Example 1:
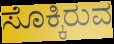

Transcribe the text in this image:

ಸೊಕ್ಕಿರುವ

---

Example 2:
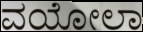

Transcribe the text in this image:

ವಯೋಲಾ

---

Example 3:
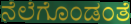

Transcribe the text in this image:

ನೆಲೆಗೊಂಡಂತೆ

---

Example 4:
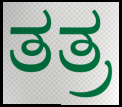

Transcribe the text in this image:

ತತ್ರ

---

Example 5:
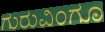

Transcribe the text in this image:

ಗುರುವಿಂಗೂ